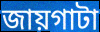
জায়গাটা